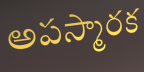
అపస్మారక